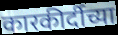
कारकीर्दीच्या